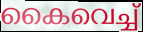
കൈവെച്ച്